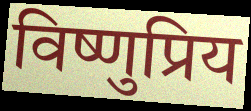
विष्णुप्रिय